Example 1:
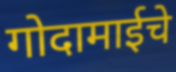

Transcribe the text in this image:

गोदामाईचे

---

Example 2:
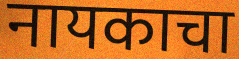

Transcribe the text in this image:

नायकाचा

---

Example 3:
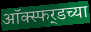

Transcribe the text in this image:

ऑक्स्फर्डच्या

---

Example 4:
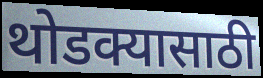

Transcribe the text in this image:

थोडक्यासाठी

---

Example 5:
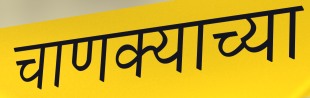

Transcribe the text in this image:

चाणक्याच्या